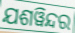
ଯଶୱିନ୍ଦର